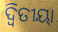
ଦ୍ଵିତୀୟା